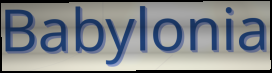
Babylonia